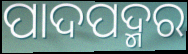
ପାଦପଦ୍ମର